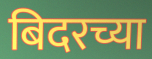
बिदरच्या